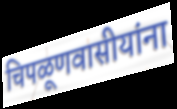
चिपळूणवासीयांना